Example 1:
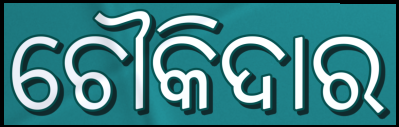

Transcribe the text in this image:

ଚୌକିଦାର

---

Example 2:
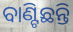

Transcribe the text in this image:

ବାଣ୍ଟିଛନ୍ତି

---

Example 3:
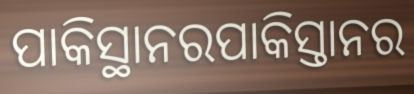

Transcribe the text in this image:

ପାକିସ୍ଥାନରପାକିସ୍ତାନର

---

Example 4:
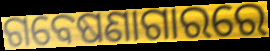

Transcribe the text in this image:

ଗବେଷଣାଗାରରେ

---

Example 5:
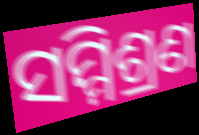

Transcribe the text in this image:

ସମ୍ମିଶ୍ରଣ